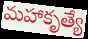
మహాకృత్యే